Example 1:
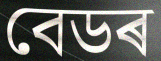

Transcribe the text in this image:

বেডৰ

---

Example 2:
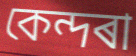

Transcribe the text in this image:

কেন্দৰা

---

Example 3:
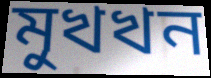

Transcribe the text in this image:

মুখখন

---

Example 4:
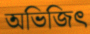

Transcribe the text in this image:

অভিজিৎ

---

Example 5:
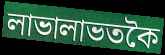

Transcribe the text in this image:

লাভালাভতকৈ